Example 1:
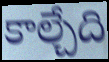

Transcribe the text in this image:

కాల్చేది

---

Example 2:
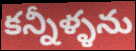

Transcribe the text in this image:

కన్నీళ్ళను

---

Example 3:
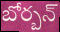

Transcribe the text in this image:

బోర్బన్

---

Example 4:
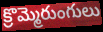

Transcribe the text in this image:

క్రొమ్మెరుంగులు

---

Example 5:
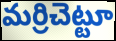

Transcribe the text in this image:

మర్రిచెట్టూ